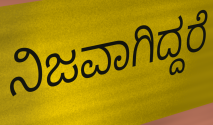
ನಿಜವಾಗಿದ್ದರೆ